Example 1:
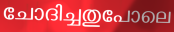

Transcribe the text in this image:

ചോദിച്ചതുപോലെ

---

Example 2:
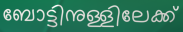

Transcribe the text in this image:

ബോട്ടിനുള്ളിലേക്ക്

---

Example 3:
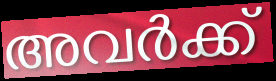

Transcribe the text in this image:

അവർക്ക്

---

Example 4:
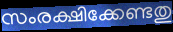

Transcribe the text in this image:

സംരക്ഷിക്കേണ്ടതു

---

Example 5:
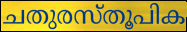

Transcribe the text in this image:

ചതുരസ്തൂപിക